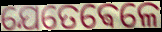
ଯେତେଵେଳେ